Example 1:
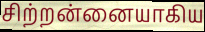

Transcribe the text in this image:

சிற்றன்னையாகிய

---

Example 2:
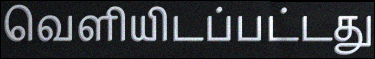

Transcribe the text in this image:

வெளியிடப்பட்டது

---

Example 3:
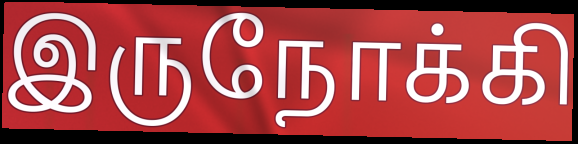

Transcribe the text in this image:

இருநோக்கி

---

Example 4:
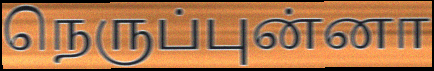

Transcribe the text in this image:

நெருப்புன்னா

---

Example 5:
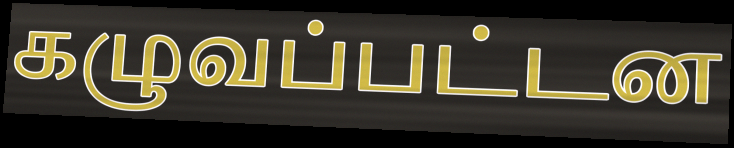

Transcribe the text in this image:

கழுவப்பட்டன